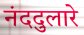
नंददुलारे